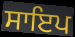
ਸਾਇਪ